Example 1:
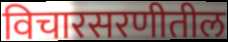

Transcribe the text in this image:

विचारसरणीतील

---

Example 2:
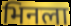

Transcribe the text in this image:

भिनला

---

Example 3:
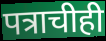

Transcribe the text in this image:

पत्राचीही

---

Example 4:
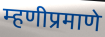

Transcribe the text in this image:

म्हणीप्रमाणे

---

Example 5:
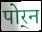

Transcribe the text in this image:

पोर्न